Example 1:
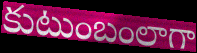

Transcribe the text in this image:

కుటుంబంలాగా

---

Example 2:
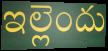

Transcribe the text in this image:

ఇల్లెందు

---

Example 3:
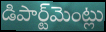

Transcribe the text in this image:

డిపార్ట్‌మెంట్లు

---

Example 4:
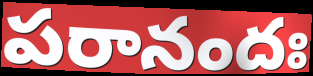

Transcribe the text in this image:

పరానందః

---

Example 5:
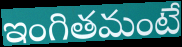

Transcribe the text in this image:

ఇంగితమంటే